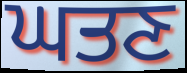
ਘਤਣ